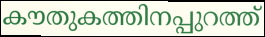
കൗതുകത്തിനപ്പുറത്ത്